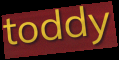
toddy